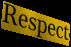
Respect